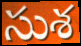
సుశ